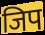
जिप